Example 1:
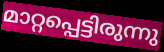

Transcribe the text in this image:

മാറ്റപ്പെട്ടിരുന്നു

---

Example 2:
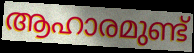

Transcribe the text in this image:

ആഹാരമുണ്ട്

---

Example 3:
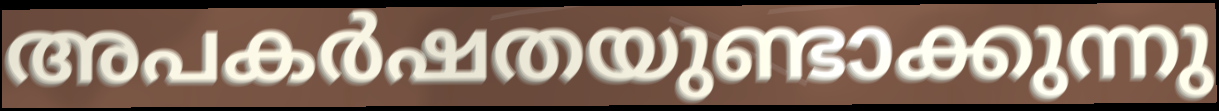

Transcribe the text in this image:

അപകർഷതയുണ്ടാക്കുന്നു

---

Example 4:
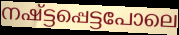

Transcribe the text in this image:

നഷ്ട്ടപ്പെട്ടപോലെ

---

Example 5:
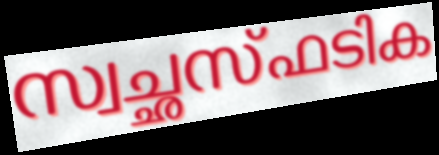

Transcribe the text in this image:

സ്വച്ഛസ്ഫടിക